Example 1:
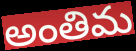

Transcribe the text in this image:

అంతిమ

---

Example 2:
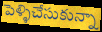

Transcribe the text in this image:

పెళ్ళిచేసుకున్నా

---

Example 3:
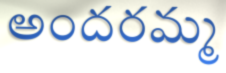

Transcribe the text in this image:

అందరమ్మ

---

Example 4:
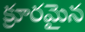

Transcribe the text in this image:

క్రూరమైన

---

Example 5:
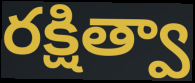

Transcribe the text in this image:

రక్షిత్వా